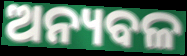
ଅନ୍ୟବଳ